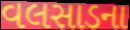
વલસાડના